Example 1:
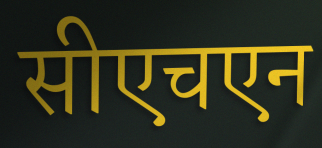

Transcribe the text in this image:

सीएचएन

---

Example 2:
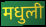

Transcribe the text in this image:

मधुली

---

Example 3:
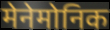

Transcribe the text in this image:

मेनेमोनिक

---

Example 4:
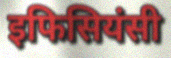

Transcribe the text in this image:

इफिसियंसी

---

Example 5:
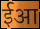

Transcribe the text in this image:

ईआ